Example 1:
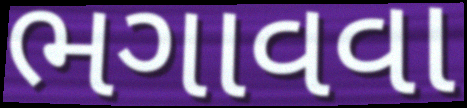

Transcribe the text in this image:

ભગાવવા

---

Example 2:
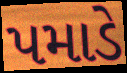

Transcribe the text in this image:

પમાડે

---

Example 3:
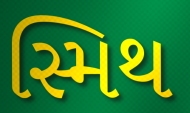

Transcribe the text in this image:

સ્મિથ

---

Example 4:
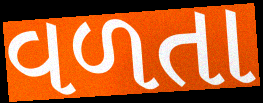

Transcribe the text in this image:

વળતા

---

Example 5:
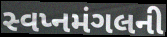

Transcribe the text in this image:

સ્વપ્નમંગલની